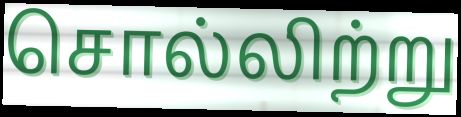
சொல்லிற்று